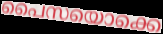
പൈസയൊക്കെ